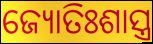
ଜ୍ୟୋତିଃଶାସ୍ତ୍ର